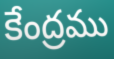
కేంద్రము